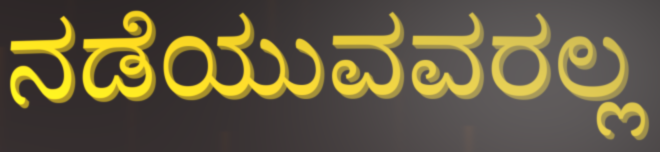
ನಡೆಯುವವರಲ್ಲ